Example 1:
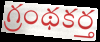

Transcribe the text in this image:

గ్రంథకర్త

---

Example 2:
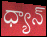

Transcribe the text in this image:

ధ్యాన్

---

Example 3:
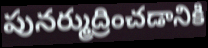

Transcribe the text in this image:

పునర్ముద్రించడానికి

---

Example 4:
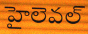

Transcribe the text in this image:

హైలెవల్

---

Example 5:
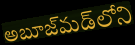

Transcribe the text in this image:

అబూజ్‌మడ్‌లోని